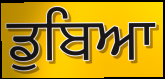
ਡੁਬਿਆ